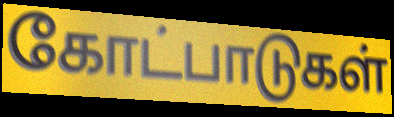
கோட்பாடுகள்